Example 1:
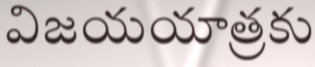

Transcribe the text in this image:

విజయయాత్రకు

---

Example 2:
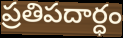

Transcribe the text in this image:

ప్రతిపదార్ధం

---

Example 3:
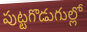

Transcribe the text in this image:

పుట్టగొడుగుల్లో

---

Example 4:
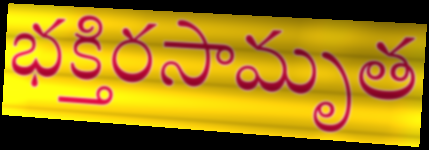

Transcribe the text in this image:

భక్తిరసామృత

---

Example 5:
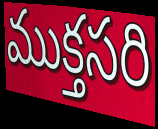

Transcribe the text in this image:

ముక్తసరి